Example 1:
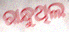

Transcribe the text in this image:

ରାନ୍ଧୁଥିଲ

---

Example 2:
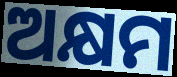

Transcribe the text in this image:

ଅକ୍ଷମ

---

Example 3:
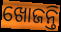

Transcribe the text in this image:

ଖୋଜନ୍ତି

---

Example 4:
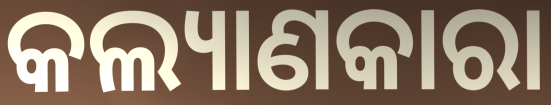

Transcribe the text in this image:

କଲ୍ୟାଣକାରା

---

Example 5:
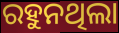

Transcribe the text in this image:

ରହୁନଥିଲା